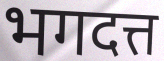
भगदत्त